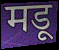
मडू